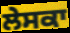
ਲੇਸਕਾ